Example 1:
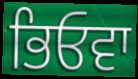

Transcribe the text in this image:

ਭਿਓਵਾ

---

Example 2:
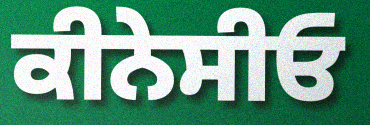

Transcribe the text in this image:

ਕੀਨੇਸੀਓ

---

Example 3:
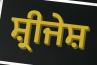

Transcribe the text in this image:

ਸ਼੍ਰੀਜੇਸ਼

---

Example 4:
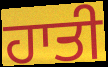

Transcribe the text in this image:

ਹਾਤੀ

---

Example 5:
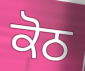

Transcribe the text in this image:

ਕੋਠ